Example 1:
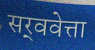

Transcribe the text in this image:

सर्ववेत्ता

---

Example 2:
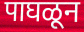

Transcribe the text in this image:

पाघळून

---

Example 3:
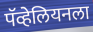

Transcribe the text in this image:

पॅव्हेलियनला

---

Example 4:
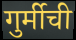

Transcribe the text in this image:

गुर्मीची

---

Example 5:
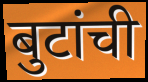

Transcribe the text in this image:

बुटांची